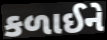
કળાઈને